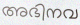
അഭിനവ